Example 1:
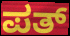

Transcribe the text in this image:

ಪತ್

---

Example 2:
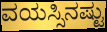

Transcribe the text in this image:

ವಯಸ್ಸಿನಷ್ಟು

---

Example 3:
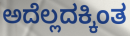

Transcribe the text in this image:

ಅದೆಲ್ಲದಕ್ಕಿಂತ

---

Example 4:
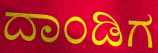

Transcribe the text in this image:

ದಾಂಡಿಗ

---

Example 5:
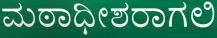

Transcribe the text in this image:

ಮಠಾಧೀಶರಾಗಲಿ